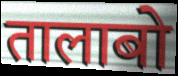
तालाबो